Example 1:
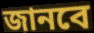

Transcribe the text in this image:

জানবে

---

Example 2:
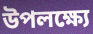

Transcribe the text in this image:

উপলক্ষ্যে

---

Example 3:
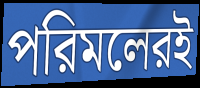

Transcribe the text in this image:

পরিমলেরই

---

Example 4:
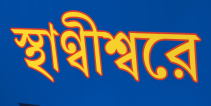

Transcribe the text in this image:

স্থাণ্বীশ্বরে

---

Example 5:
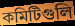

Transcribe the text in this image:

কমিটিগুলি